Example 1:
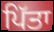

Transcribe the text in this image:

ਪਿੱਤਾ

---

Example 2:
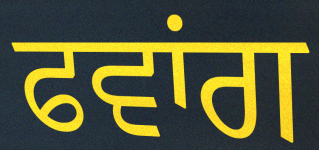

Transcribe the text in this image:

ਫਵਾਂਗ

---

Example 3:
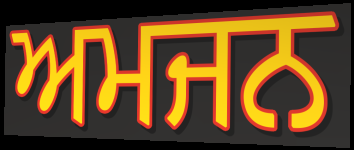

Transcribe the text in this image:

ਅਮਜਨ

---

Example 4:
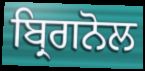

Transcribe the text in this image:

ਬ੍ਰਿਗਨੋਲ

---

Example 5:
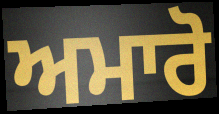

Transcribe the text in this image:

ਅਮਾਰੋ